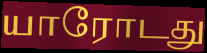
யாரோடது